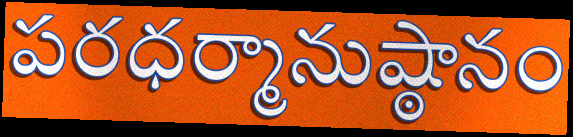
పరధర్మానుష్ఠానం